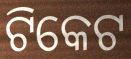
ଟିକେଟ